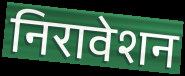
निरावेशन